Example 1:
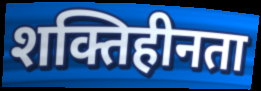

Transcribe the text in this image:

शक्तिहीनता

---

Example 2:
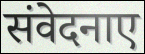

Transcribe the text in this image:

संवेदनाए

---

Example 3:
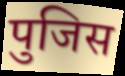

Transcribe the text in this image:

पुजिस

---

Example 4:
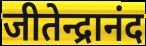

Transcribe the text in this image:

जीतेन्द्रानंद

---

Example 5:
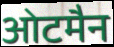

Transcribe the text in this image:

ओटमैन